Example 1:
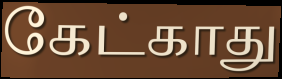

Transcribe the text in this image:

கேட்காது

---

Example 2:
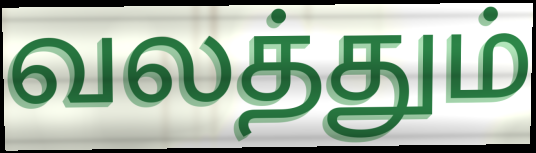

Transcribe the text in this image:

வலத்தும்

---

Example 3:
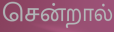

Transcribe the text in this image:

சென்றால்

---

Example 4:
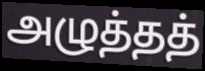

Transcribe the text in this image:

அழுத்தத்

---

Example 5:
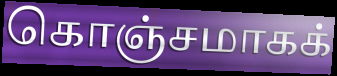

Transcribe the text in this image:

கொஞ்சமாகக்